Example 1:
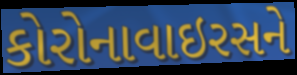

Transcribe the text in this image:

કોરોનાવાઇરસને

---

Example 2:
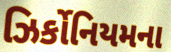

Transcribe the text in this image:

ઝિર્કોનિયમના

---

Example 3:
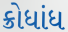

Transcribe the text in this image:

ક્રોધાંધ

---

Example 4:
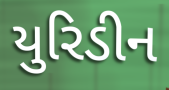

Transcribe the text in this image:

યુરિડીન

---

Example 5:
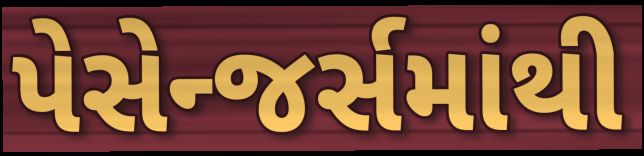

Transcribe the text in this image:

પેસેન્જર્સમાંથી